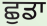
ਛੁਡਾ